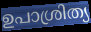
ഉപാശ്രിത്യ